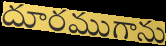
దూరముగాను